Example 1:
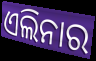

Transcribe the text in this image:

ଏଲିନାର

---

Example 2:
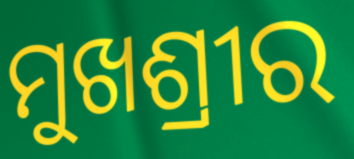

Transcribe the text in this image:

ମୁଖଶ୍ରୀର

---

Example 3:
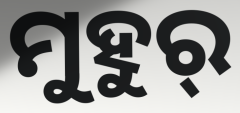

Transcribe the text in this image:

ମୁହୁର୍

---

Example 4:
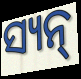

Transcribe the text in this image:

ସ୍ୟନ୍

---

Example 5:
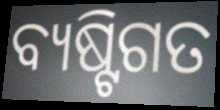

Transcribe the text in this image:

ବ୍ୟଷ୍ଟିଗତ